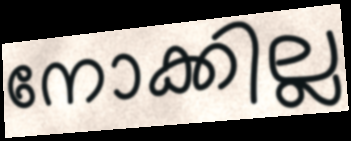
നോക്കില്ല